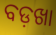
ବଡ଼ଖା